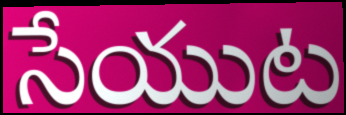
సేయుట